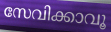
സേവിക്കാവൂ